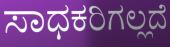
ಸಾಧಕರಿಗಲ್ಲದೆ